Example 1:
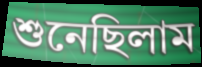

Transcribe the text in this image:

শুনেছিলাম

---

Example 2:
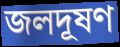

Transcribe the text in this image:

জলদূষণ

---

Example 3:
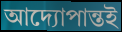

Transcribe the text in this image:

আদ্যোপান্তই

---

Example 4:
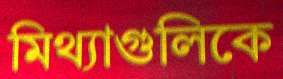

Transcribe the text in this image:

মিথ্যাগুলিকে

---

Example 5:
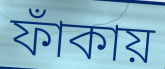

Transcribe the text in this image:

ফাঁকায়